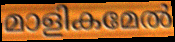
മാളികമേൽ